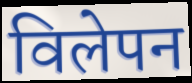
विलेपन